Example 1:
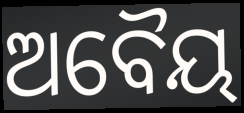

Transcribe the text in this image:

ଅବୈୟ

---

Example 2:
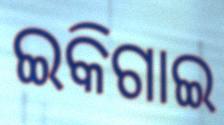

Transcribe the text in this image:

ଇକିଗାଇ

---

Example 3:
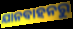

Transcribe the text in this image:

ଯାନବାହନରୁ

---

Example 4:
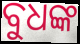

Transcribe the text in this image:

ବୁଧଙ୍କ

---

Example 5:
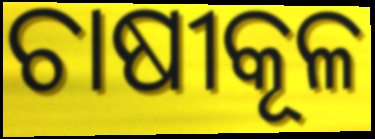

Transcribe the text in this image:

ଚାଷୀକୂଳ